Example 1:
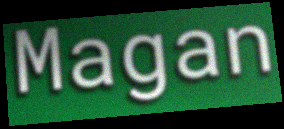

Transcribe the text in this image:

Magan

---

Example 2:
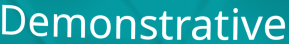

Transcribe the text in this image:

Demonstrative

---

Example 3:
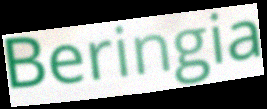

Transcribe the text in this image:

Beringia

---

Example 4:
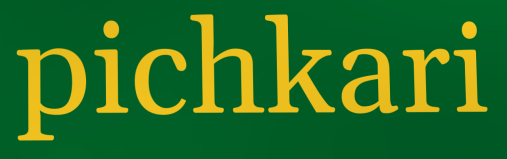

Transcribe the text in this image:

pichkari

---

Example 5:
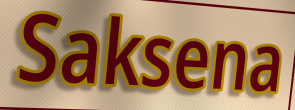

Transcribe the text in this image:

Saksena